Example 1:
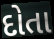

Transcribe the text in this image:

દોતા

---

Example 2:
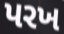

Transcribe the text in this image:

પરખ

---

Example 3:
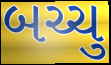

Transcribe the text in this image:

બચ્ચુ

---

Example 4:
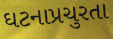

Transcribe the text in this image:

ઘટનાપ્રચુરતા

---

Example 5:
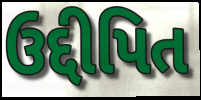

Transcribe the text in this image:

ઉદ્દીપિત